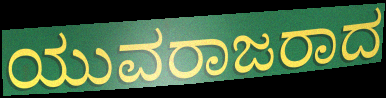
ಯುವರಾಜರಾದ